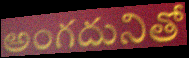
అంగదునితో